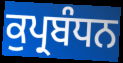
ਕੁਪ੍ਰਬੰਧਨ